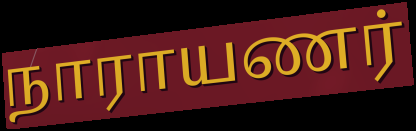
நாராயணர்